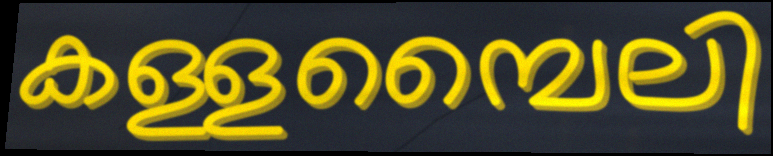
കള്ളമ്പൈലി